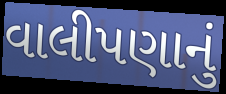
વાલીપણાનું